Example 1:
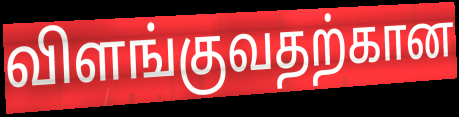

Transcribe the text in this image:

விளங்குவதற்கான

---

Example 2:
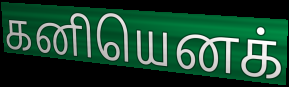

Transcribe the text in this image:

கனியெனக்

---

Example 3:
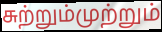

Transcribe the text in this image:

சுற்றும்முற்றும்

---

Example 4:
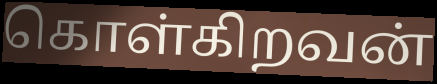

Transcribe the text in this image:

கொள்கிறவன்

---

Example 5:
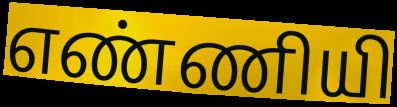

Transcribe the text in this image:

எண்ணியி